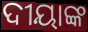
ଦୀୟାଙ୍କ